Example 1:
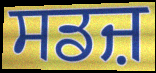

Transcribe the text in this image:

ਸਡਜ਼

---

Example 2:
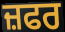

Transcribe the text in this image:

ਜ਼ਫਰ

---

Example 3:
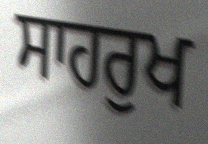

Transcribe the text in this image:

ਸਾਹਰੁਖ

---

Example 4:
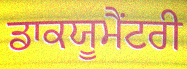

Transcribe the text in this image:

ਡਾਕਯੂਮੈਂਟਰੀ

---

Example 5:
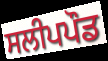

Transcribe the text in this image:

ਸਲੀਪਪੌਡ